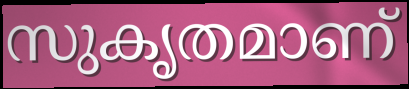
സുകൃതമാണ്